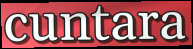
cuntara